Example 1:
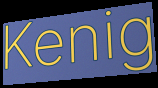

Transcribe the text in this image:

Kenig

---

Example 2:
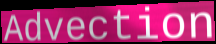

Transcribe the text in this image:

Advection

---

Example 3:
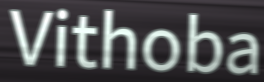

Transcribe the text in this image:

Vithoba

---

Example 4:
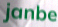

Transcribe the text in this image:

janbe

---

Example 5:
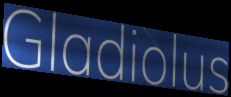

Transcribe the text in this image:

Gladiolus